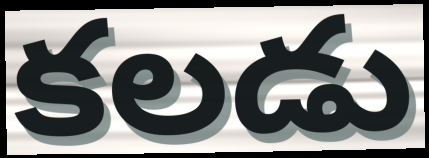
కలడు